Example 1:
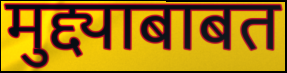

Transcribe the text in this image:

मुद्द्याबाबत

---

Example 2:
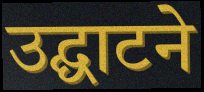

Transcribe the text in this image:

उद्घाटने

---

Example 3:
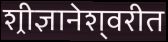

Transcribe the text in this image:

श्रीज्ञानेश्वरीत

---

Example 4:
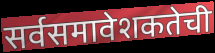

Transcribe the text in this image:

सर्वसमावेशकतेची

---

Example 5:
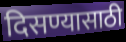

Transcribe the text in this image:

दिसण्यासाठी